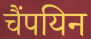
चैंपयिन